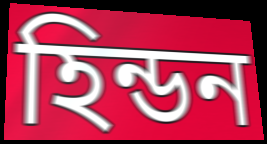
হিন্ডন